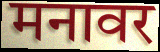
मनावर